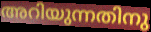
അറിയുന്നതിനു